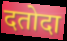
दतोदा